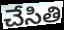
చేసితి